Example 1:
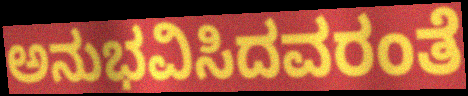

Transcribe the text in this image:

ಅನುಭವಿಸಿದವರಂತೆ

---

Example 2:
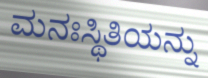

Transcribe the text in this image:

ಮನಃಸ್ಥಿತಿಯನ್ನು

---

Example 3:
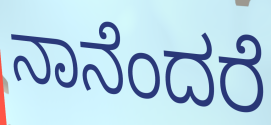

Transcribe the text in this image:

ನಾನೆಂದರೆ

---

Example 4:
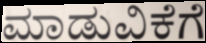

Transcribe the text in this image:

ಮಾಡುವಿಕೆಗೆ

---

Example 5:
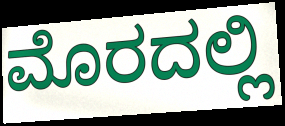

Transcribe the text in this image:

ಮೊರದಲ್ಲಿ